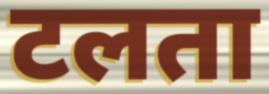
टलता